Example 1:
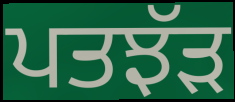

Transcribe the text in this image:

ਪਤਝੱੜ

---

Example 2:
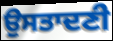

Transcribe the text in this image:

ਉਸਤਾਦਣੀ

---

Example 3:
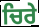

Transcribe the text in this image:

ਚਿਰੇ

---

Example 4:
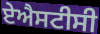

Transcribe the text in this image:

ਏਐਸਟੀਸੀ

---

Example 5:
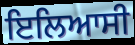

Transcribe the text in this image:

ਇਲਿਆਸੀ